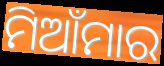
ମିଆଁମାର